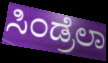
ಸಿಂಡ್ರೆಲಾ